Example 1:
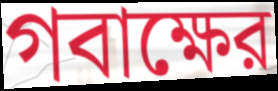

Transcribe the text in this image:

গবাক্ষের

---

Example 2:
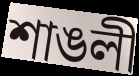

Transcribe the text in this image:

শাঙলী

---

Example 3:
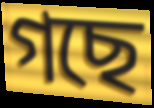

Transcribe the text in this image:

গছে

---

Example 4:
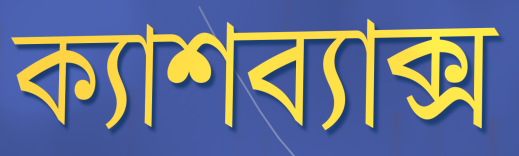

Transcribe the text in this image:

ক্যাশব্যাক্স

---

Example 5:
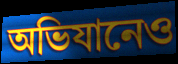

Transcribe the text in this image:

অভিযানেও